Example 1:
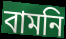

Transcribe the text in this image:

বামনি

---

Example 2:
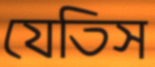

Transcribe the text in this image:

যেতিস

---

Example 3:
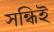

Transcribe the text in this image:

সন্ধিই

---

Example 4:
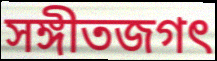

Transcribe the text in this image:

সঙ্গীতজগৎ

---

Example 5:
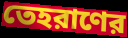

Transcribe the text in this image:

তেহরাণের